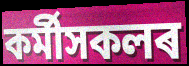
কৰ্মীসকলৰ